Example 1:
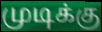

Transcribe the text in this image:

முடிக்கு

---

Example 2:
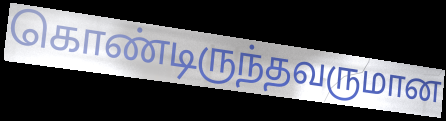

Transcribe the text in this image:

கொண்டிருந்தவருமான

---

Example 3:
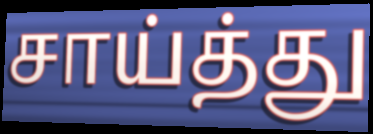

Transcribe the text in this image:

சாய்த்து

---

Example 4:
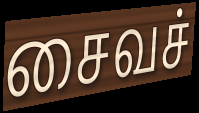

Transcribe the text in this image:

சைவச்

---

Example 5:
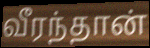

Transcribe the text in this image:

வீரந்தான்